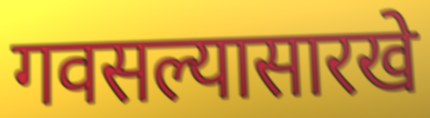
गवसल्यासारखे